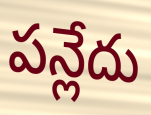
పన్లేదు